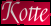
Kotte